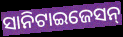
ସାନିଟାଇଜେସନ୍